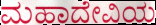
ಮಹಾದೇವಿಯ